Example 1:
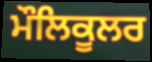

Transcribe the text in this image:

ਮੌਲਿਕੂਲਰ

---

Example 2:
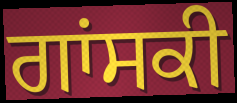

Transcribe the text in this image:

ਗਾਂਸਕੀ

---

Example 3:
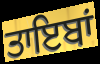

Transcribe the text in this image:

ਤਾਇਬਾਂ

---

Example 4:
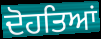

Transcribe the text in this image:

ਦੋਹਤਿਆਂ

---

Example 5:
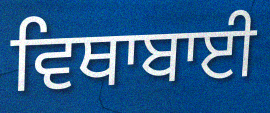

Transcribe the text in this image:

ਵਿਥਾਬਾਈ